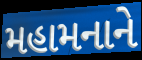
મહામનાને